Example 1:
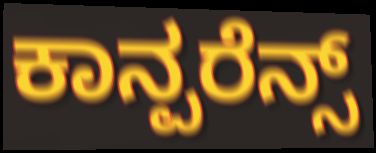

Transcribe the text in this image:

ಕಾನ್ಪರೆನ್ಸ್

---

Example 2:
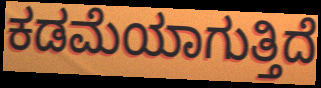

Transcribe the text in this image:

ಕಡಮೆಯಾಗುತ್ತಿದೆ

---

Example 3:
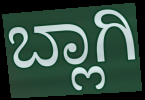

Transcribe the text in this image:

ಬ್ಲಾಗಿ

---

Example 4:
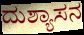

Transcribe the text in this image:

ದುಶ್ಯಾಸನ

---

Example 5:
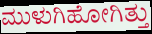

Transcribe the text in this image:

ಮುಳುಗಿಹೋಗಿತ್ತು